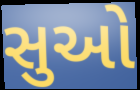
સુઓ